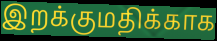
இறக்குமதிக்காக